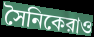
সৈনিকেরাও